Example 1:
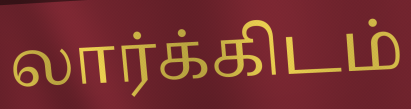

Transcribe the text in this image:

லார்க்கிடம்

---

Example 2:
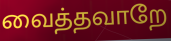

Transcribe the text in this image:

வைத்தவாறே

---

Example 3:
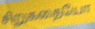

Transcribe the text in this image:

சிறுகதையோ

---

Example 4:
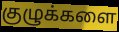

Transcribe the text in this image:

குழுக்களை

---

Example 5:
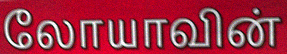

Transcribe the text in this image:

லோயாவின்